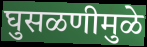
घुसळणीमुळे